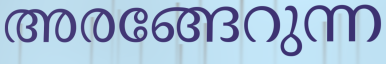
അരങ്ങേറുന്ന